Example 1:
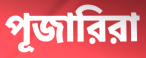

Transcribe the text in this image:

পূজারিরা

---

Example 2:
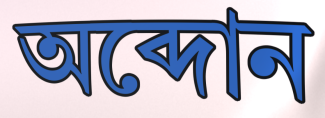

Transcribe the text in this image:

অব্দোন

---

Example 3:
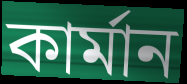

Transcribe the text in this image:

কার্মান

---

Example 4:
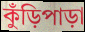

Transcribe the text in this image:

কুঁড়িপাড়া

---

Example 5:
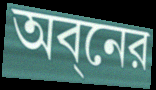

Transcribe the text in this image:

অব্নের